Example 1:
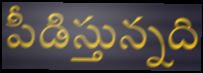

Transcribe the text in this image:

పీడిస్తున్నది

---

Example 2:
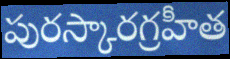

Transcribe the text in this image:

పురస్కారగ్రహీత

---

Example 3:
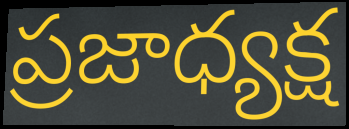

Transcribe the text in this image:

ప్రజాధ్యక్ష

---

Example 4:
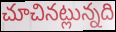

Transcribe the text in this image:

చూచినట్లున్నది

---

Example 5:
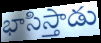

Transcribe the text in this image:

భాసిస్తాడు